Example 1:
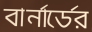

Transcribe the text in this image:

বার্নার্ডের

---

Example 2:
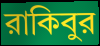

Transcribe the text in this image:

রাকিবুর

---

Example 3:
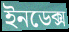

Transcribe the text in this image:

ইনডেক্স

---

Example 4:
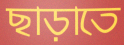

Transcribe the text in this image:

ছাড়াতে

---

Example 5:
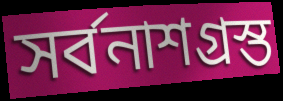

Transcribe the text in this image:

সর্বনাশগ্রস্ত